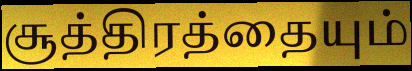
சூத்திரத்தையும்